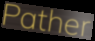
Pather